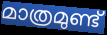
മാത്രമുണ്ട്